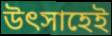
উৎসাহেই